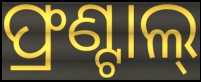
ଫ୍ରଣ୍ଟାଲ୍